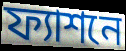
ফ্যাশনে